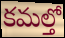
కమల్తో